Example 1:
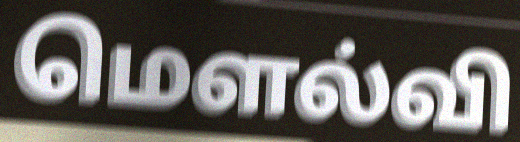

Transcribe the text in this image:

மௌல்வி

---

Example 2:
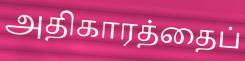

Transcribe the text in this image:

அதிகாரத்தைப்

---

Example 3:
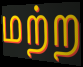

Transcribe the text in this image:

மற்ற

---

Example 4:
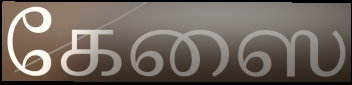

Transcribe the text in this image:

கேஸை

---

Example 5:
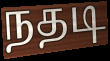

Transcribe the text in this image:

நதடி